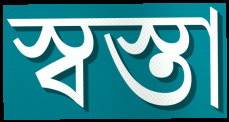
স্বস্তা